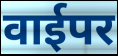
वाईपर